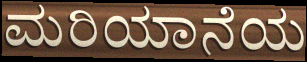
ಮರಿಯಾನೆಯ